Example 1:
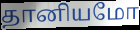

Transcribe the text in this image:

தானியமோ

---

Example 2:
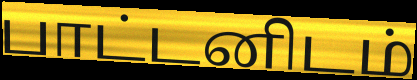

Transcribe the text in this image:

பாட்டனிடம்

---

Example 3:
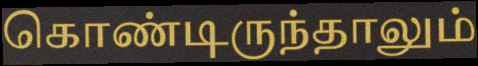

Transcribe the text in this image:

கொண்டிருந்தாலும்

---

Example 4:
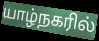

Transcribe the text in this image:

யாழ்நகரில்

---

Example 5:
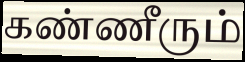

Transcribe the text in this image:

கண்ணீரும்